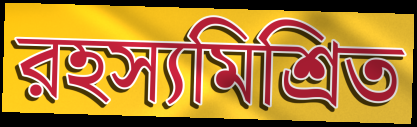
রহস্যমিশ্রিত